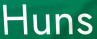
Huns